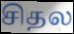
சிதல